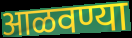
आळवण्या